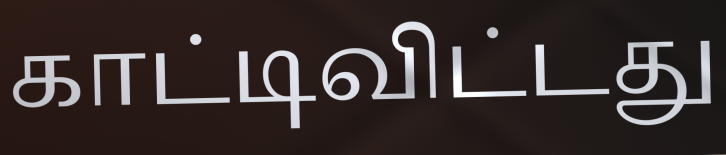
காட்டிவிட்டது